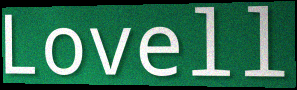
Lovell